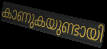
കാണുകയുണ്ടായി